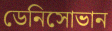
ডেনিসোভান